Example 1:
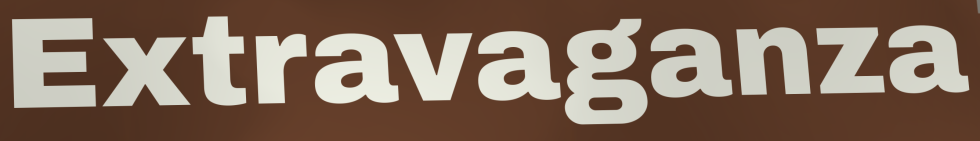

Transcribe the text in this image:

Extravaganza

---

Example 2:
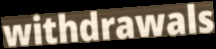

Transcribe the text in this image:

withdrawals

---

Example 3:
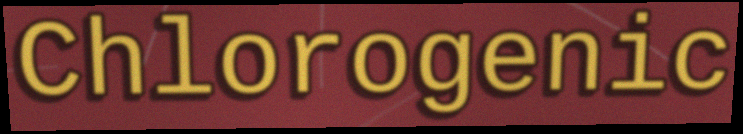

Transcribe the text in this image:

Chlorogenic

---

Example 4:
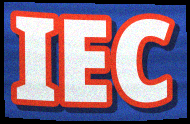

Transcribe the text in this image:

IEC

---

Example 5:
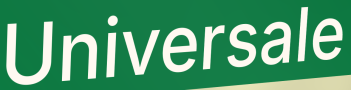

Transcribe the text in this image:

Universale